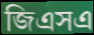
জিএসএ